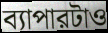
ব্যাপারটাও